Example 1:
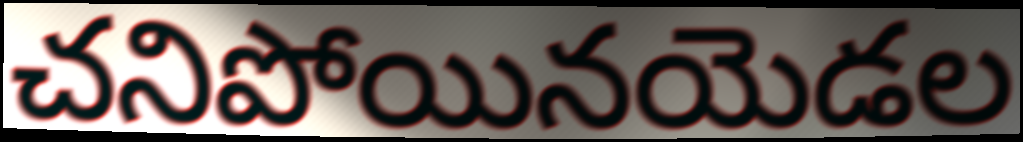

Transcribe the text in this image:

చనిపోయినయెడల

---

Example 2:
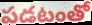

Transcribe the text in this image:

పడటంతో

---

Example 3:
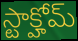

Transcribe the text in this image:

స్టాక్హోమ్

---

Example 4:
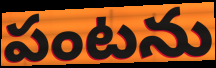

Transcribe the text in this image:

పంటను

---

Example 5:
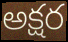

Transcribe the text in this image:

అక్షర